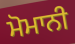
ਮੋਮਾਨੀ